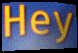
Hey